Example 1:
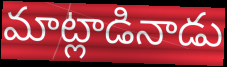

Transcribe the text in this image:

మాట్లాడినాడు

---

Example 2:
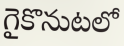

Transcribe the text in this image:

గైకొనుటలో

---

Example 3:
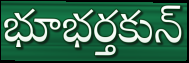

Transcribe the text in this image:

భూభర్తకున్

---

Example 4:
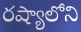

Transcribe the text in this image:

రష్యాలోని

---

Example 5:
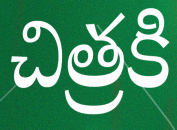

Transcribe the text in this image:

చిత్రకి